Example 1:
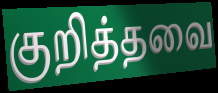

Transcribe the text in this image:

குறித்தவை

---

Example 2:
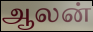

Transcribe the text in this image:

ஆலன்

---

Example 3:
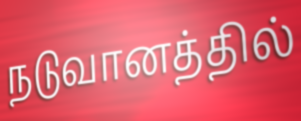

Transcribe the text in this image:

நடுவானத்தில்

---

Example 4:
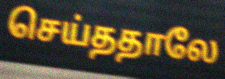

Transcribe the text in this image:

செய்ததாலே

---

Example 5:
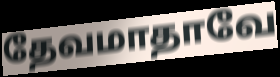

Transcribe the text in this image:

தேவமாதாவே